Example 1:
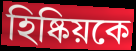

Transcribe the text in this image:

হিষ্কিয়কে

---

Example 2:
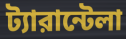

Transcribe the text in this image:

ট্যারান্টেলা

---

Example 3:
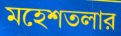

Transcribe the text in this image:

মহেশতলার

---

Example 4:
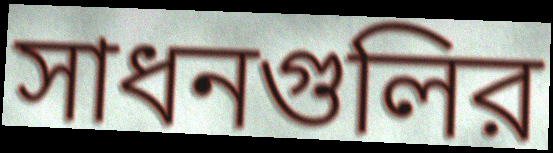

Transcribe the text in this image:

সাধনগুলির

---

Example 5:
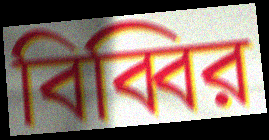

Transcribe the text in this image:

বিব্বির